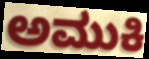
ಅಮುಕಿ